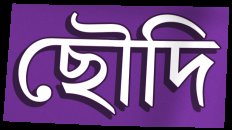
ছৌদি